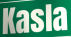
Kasla